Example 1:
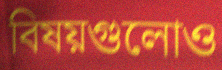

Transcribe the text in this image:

বিষয়গুলোও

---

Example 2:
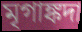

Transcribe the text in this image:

মৃগাঙ্কদা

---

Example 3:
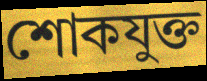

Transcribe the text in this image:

শোকযুক্ত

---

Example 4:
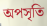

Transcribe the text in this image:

অপসৃতি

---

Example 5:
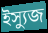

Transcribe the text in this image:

ইস্যুজ